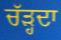
ਚੱੜ੍ਹਦਾ